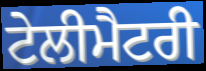
ਟੇਲੀਮੈਟਰੀ